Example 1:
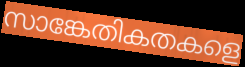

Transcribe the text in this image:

സാങ്കേതികതകളെ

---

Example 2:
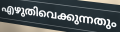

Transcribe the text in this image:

എഴുതിവെക്കുന്നതും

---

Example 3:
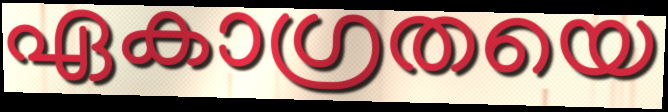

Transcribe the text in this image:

ഏകാഗ്രതയെ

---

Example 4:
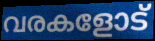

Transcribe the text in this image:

വരകളോട്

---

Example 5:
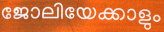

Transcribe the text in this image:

ജോലിയേക്കാളും